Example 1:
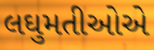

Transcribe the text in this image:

લઘુમતીઓએ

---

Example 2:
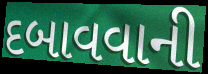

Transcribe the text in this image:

દબાવવાની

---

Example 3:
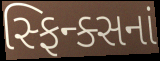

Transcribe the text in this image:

સ્ફિન્ક્સનાં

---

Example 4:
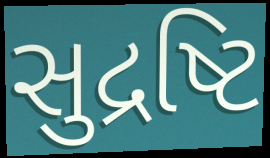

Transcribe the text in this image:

સુદ્રષ્ટિ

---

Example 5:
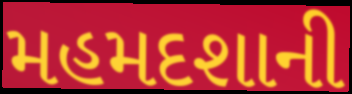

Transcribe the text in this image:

મહમદશાની